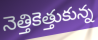
నెత్తికెత్తుకున్న